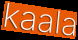
kaala